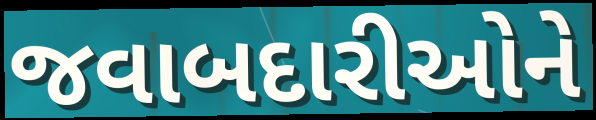
જવાબદારીઓને